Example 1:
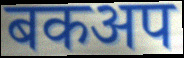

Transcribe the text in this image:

बकअप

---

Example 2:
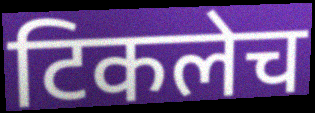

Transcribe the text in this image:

टिकलेच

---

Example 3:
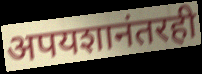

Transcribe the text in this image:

अपयशानंतरही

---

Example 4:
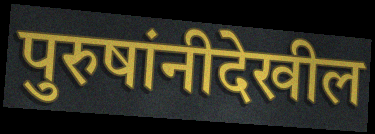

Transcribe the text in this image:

पुरुषांनीदेखील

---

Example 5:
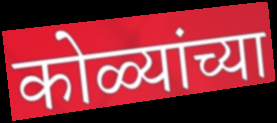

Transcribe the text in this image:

कोळ्यांच्या